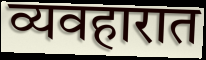
व्यवहारात